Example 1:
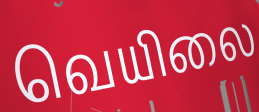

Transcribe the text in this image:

வெயிலை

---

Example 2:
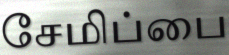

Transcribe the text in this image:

சேமிப்பை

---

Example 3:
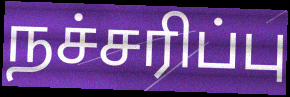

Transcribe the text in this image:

நச்சரிப்பு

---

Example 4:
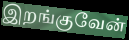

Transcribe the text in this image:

இறங்குவேன்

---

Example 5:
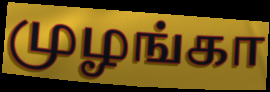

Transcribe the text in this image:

முழங்கா